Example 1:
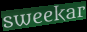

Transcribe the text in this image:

sweekar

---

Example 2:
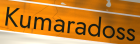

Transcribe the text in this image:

Kumaradoss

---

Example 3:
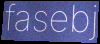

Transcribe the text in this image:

fasebj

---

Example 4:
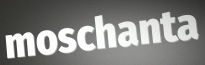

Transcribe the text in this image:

moschanta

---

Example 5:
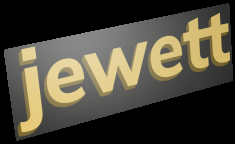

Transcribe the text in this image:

jewett